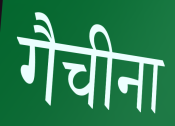
गैचीना